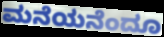
ಮನೆಯನೆಂದೂ